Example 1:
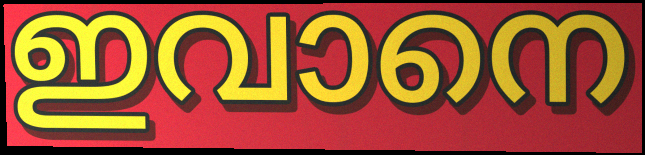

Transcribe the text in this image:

ഇവാനെ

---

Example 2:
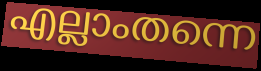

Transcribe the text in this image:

എല്ലാംതന്നെ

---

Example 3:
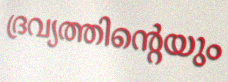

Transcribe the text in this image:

ദ്രവ്യത്തിന്റെയും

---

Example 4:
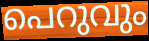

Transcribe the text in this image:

പെറുവും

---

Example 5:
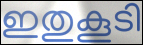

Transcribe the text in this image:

ഇതുകൂടി